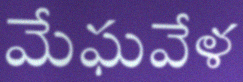
మేఘవేళ